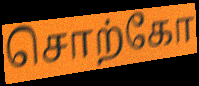
சொற்கோ